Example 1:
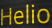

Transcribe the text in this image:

Helio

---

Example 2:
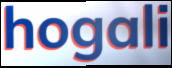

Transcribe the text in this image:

hogali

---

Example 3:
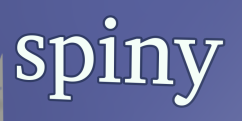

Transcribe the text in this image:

spiny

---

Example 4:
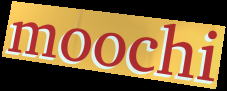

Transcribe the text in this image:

moochi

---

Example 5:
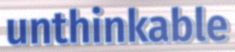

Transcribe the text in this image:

unthinkable